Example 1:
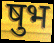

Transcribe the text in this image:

षुभ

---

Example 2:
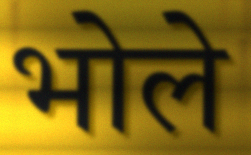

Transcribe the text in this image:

भोले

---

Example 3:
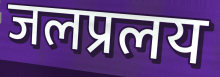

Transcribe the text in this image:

जलप्रलय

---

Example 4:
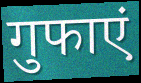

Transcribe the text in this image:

गुफाएं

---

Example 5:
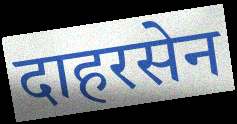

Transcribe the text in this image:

दाहरसेन